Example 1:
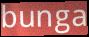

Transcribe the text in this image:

bunga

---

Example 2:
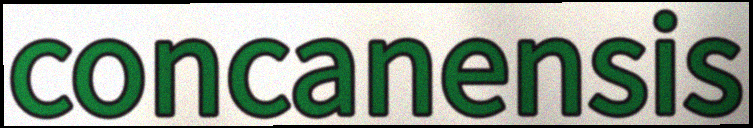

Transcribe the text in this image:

concanensis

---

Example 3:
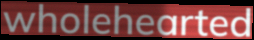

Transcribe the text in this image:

wholehearted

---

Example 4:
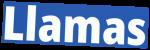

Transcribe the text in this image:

Llamas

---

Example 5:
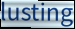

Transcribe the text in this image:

lusting